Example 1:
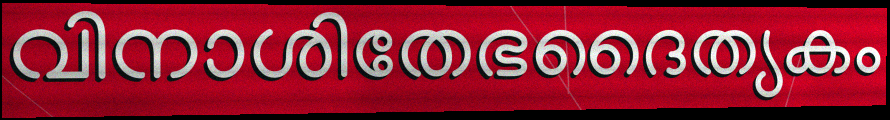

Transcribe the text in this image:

വിനാശിതേഭദൈത്യകം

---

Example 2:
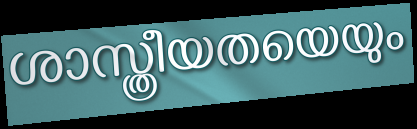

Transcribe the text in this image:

ശാസ്ത്രീയതയെയും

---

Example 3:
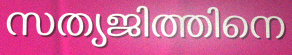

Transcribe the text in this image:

സത്യജിത്തിനെ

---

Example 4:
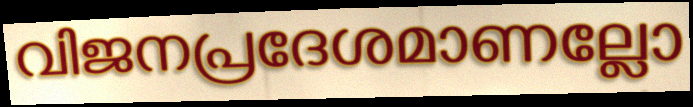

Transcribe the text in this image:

വിജനപ്രദേശമാണല്ലോ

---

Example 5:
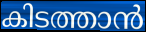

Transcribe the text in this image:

കിടത്താൻ